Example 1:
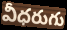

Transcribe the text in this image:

వీధరుగు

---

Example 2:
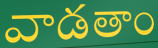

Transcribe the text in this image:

వాడతాం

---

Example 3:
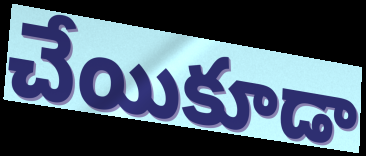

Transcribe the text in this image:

చేయికూడా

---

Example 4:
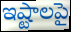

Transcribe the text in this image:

ఇష్టాలపై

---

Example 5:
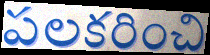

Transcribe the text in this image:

పలకరించి